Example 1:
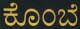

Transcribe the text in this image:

ಕೊಂಬೆ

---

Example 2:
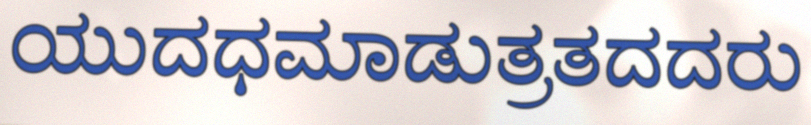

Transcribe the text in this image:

ಯುದಧಮಾಡುತ್ರತದದರು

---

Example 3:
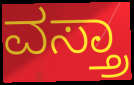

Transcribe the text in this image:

ವಸ್ತ್ರಾ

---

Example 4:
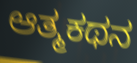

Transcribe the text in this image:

ಆತ್ಮಕಥನ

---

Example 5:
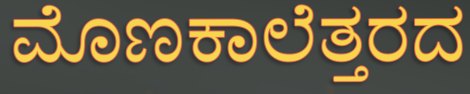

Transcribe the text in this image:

ಮೊಣಕಾಲೆತ್ತರದ